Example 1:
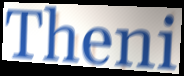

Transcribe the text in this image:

Theni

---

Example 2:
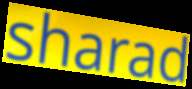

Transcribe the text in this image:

sharad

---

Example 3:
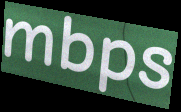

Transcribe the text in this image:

mbps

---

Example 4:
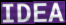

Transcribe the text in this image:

IDEA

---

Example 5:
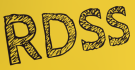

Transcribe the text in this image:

RDSS